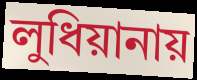
লুধিয়ানায়